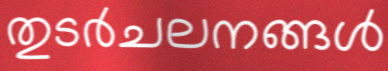
തുടർചലനങ്ങൾ